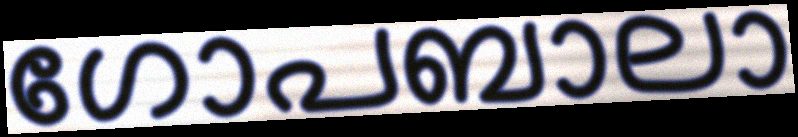
ഗോപബാലാ